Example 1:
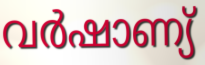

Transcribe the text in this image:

വർഷാണ്യ്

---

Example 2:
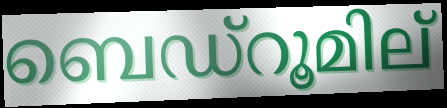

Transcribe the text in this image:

ബെഡ്റൂമില്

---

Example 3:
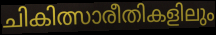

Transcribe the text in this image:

ചികിത്സാരീതികളിലും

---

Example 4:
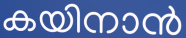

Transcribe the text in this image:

കയിനാൻ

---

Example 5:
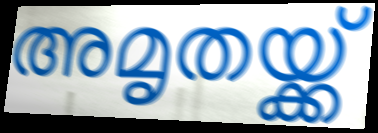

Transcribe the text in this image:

അമൃതയ്ക്ക്